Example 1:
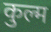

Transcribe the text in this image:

कुल्म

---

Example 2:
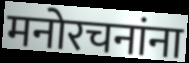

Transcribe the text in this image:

मनोरचनांना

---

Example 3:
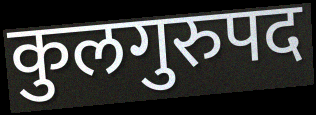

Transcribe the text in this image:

कुलगुरुपद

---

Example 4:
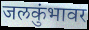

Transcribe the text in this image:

जलकुंभावर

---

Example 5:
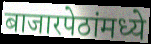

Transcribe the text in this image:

बाजारपेठांमध्ये